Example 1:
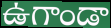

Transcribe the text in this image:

ఉగాండా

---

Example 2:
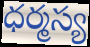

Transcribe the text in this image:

ధర్మస్య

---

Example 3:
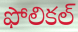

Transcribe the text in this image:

ఫోలికల్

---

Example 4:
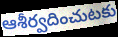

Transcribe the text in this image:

ఆశీర్వదించుటకు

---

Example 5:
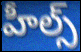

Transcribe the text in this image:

హీల్స్